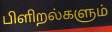
பிளிறல்களும்